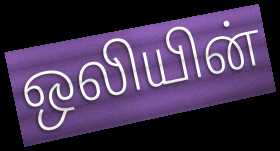
ஒலியின்